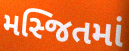
મસ્જિતમાં